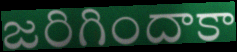
జరిగిందాకా